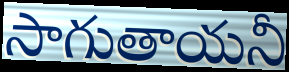
సాగుతాయనీ